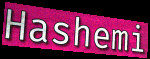
Hashemi